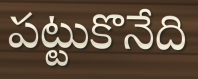
పట్టుకొనేది